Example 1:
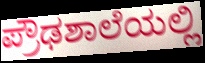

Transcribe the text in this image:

ಪ್ರೌಢಶಾಲೆಯಲ್ಲಿ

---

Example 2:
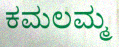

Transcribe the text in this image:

ಕಮಲಮ್ಮ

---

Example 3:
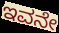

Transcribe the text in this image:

ಇವನೇ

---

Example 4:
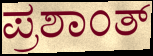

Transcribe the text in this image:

ಪ್ರಶಾಂತ್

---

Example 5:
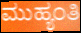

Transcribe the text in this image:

ಮುಹ್ಯಂತಿ